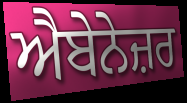
ਐਬੇਨੇਜ਼ਰ